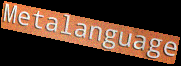
Metalanguage